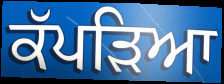
ਕੱਪੜਿਆ